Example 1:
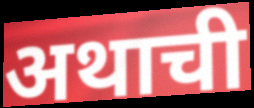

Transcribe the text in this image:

अथाची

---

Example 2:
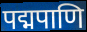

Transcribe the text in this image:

पद्मपाणि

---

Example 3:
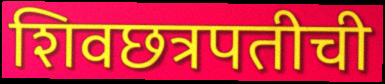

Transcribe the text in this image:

शिवछत्रपतीची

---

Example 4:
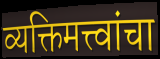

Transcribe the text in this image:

व्यक्तिमत्त्वांचा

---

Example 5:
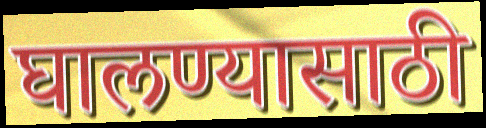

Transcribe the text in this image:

घालण्यासाठी